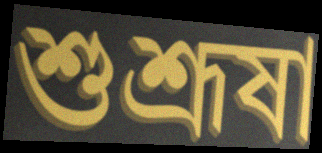
শুশ্রূষা